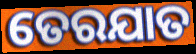
ତେରଯାତ